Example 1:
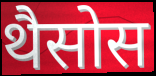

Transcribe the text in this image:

थैसोस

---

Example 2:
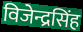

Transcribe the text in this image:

विजेन्द्रसिंह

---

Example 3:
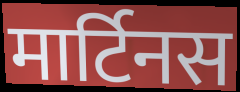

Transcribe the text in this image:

मार्टिनस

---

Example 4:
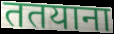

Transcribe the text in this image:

ततयाना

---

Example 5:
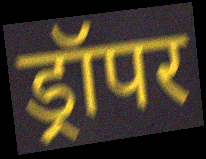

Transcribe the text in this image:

ड्रॉपर